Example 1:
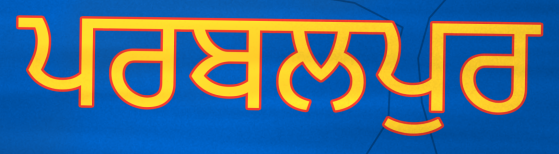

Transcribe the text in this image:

ਪਰਬਲਪੁਰ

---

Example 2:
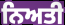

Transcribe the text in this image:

ਨਿਅਤੀ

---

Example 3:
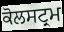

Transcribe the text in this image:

ਕੋਲਸਟ੍ਰਮ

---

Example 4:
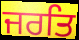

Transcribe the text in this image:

ਜਰਤਿ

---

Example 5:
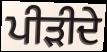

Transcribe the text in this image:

ਪੀੜੀਦੇ